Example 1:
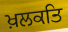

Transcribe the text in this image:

ਖ਼ਲਕਤਿ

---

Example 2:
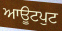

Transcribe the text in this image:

ਆਊਟਪੁਟ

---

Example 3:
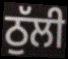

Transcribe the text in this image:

ਠੁੱਲੀ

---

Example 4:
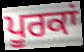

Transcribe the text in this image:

ਪੂਰਕਾਂ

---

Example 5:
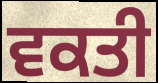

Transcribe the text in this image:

ਵਕਤੀ